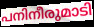
പനിനീരുമാടി